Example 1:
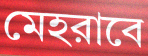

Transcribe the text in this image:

মেহরাবে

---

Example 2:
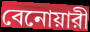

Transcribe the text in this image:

বেনোয়ারী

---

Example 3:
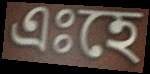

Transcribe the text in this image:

এঃহে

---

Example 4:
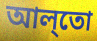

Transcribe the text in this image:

আল্‌তো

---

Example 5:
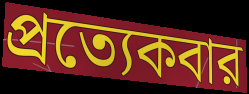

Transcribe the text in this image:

প্রত্যেকবার